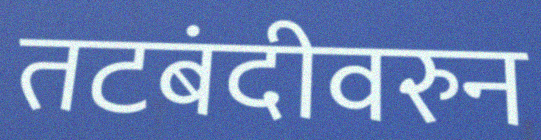
तटबंदीवरुन